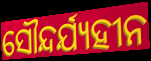
ସୌନ୍ଦର୍ଯ୍ୟହୀନ